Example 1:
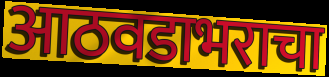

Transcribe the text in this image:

आठवडाभराचा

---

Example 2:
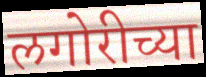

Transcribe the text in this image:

लगोरीच्या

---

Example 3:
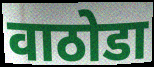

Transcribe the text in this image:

वाठोडा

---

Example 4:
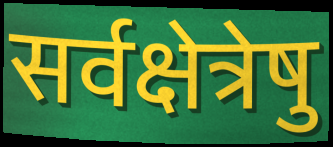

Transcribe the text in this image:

सर्वक्षेत्रेषु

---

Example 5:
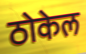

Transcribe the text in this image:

ठोकेल